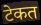
टेकत